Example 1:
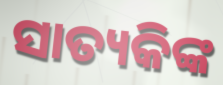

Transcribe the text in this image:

ସାତ୍ୟକିଙ୍କ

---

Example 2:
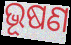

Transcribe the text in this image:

ଭୂଷଣ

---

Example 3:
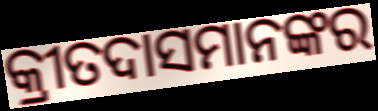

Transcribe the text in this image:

କ୍ରୀତଦାସମାନଙ୍କର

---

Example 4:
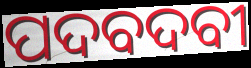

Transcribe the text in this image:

ପଦବଦବୀ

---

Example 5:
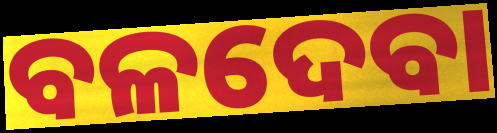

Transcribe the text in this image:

ବଳଦେବା